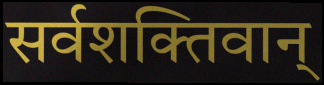
सर्वशक्तिवान्